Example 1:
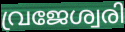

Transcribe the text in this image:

വ്രജേശ്വരി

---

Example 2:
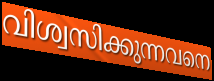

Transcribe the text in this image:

വിശ്വസിക്കുന്നവനെ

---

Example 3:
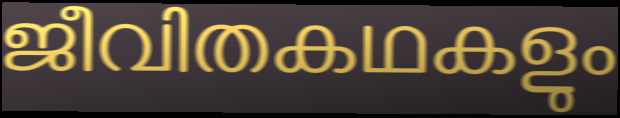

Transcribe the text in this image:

ജീവിതകഥകളും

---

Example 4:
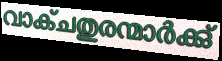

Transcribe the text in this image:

വാക്ചതുരന്മാർക്കു്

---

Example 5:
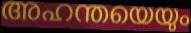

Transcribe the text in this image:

അഹന്തയെയും